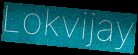
Lokvijay